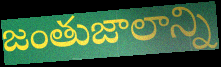
జంతుజాలాన్ని